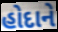
હોદાને